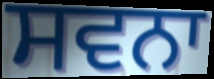
ਸਵਨਾ